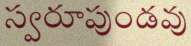
స్వరూపుండవు